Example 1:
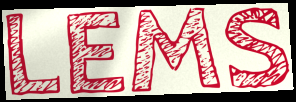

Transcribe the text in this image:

LEMS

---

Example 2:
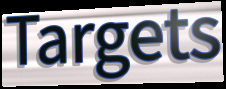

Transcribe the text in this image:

Targets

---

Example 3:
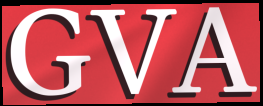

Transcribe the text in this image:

GVA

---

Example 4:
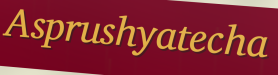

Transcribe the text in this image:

Asprushyatecha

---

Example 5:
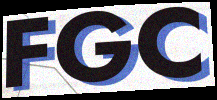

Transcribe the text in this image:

FGC